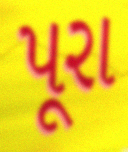
પૂરા